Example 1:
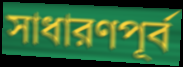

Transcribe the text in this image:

সাধারণপূর্ব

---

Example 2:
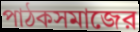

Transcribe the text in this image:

পাঠকসমাজের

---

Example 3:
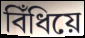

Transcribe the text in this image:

বিঁধিয়ে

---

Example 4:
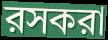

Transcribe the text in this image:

রসকরা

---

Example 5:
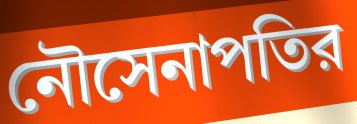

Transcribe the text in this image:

নৌসেনাপতির